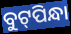
ବୁଟ୍‌ପିନ୍ଧା